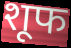
शूफ